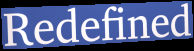
Redefined